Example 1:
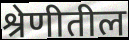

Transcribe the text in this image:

श्रेणीतील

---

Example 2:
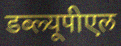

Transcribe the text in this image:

डब्ल्यूपीएल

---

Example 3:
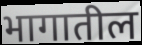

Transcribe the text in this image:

भागातील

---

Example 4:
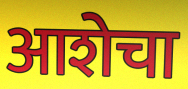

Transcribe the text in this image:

आशेचा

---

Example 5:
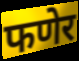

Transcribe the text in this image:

फणेर